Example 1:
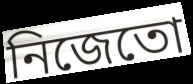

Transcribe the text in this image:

নিজেতো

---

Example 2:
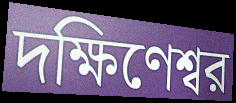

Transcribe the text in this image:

দক্ষিণেশ্বর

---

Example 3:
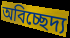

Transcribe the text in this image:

অবিচ্ছেদ্য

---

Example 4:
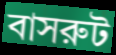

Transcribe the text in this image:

বাসরুট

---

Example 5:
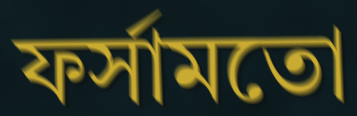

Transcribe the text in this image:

ফর্সামতো